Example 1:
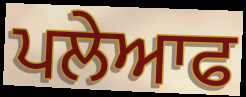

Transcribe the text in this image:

ਪਲੇਆਫ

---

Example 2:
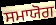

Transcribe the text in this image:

ਸਮਾਯੋਗ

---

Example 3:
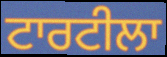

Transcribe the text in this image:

ਟਾਰਟੀਲਾ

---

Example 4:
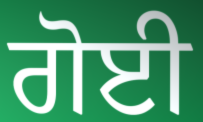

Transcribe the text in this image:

ਗੋਈ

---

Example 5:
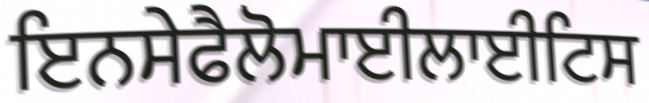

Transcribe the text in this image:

ਇਨਸੇਫੈਲੋਮਾਈਲਾਈਟਿਸ